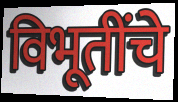
विभूतींचे